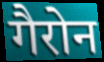
गैरोन